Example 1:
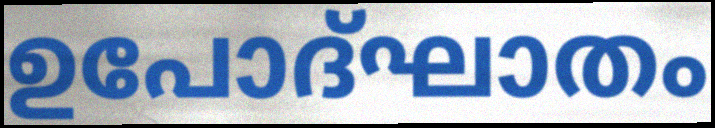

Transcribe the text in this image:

ഉപോദ്ഘാതം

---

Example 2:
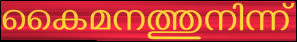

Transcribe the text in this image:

കൈമനത്തുനിന്ന്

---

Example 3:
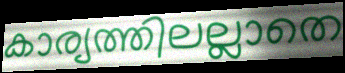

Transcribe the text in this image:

കാര്യത്തിലല്ലാതെ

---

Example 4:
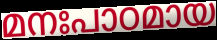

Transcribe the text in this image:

മനഃപാഠമായ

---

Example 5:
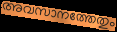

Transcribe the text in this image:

അവസാനത്തേതും